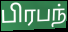
பிரபந்